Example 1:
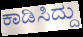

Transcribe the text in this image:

ಕಾಡಿಸಿದ್ದು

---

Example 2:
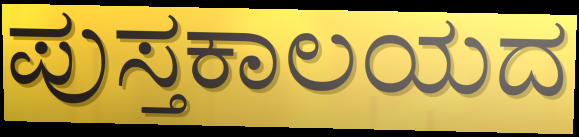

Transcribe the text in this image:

ಪುಸ್ತಕಾಲಯದ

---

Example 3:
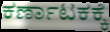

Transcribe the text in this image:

ಕರ್ಣಾಟಕಕ್ಕೆ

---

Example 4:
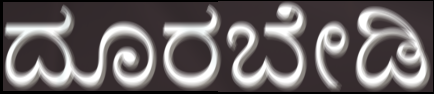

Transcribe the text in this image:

ದೂರಬೇಡಿ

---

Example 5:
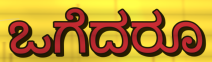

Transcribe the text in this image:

ಒಗೆದರೂ